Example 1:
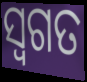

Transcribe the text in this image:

ସ୍ଵଗତ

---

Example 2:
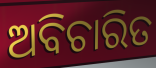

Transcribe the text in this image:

ଅବିଚାରିତ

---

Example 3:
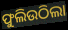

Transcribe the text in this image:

ଫୁଲିଉଠିଲା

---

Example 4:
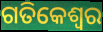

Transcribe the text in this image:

ଗତିକେଶ୍ବର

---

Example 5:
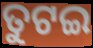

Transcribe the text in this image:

ତୁଟଇ